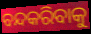
ବନ୍ଦକରିବାକୁ